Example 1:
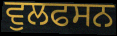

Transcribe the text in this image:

ਵੁਲਫਸਨ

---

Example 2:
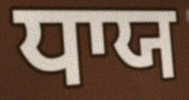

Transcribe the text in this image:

ਧਾਯ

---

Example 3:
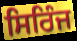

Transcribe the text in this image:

ਸਿਰਿੰਜ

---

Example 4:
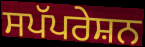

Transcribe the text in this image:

ਸਪੱਪਰੇਸ਼ਨ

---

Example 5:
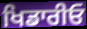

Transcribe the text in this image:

ਖਿਡਾਰੀਓ